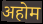
अहोम